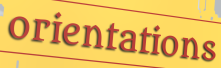
orientations